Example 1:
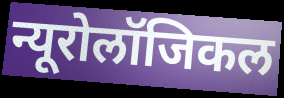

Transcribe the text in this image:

न्यूरोलॉजिकल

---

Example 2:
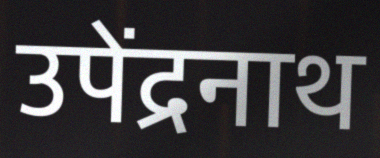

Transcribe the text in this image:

उपेंद्रनाथ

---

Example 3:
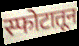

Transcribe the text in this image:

स्फोटातून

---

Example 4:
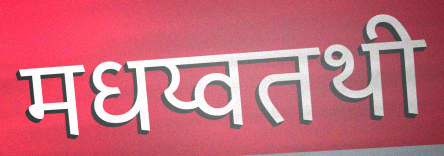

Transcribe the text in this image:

मधय्वतथी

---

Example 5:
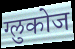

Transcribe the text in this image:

ग्लुकोज